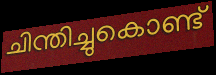
ചിന്തിച്ചുകൊണ്ട്